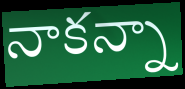
నాకన్నా